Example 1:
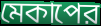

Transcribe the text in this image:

মেকাপের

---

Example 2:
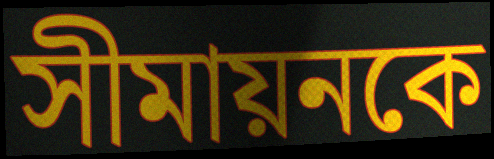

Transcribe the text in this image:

সীমায়নকে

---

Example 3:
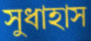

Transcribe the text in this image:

সুধাহাস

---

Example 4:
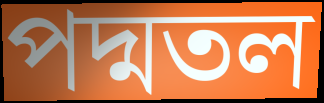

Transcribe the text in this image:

পদ্মতল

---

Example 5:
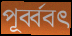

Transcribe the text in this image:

পূর্ব্ববৎ